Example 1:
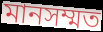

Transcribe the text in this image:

মানসম্মত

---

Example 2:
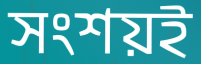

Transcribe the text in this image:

সংশয়ই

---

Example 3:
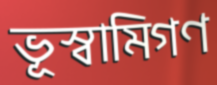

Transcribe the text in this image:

ভূস্বামিগণ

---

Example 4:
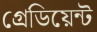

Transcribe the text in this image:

গ্রেডিয়েন্ট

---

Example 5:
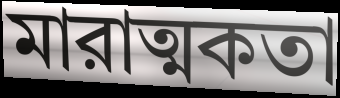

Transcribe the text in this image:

মারাত্মকতা